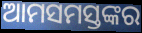
ଆମସମସ୍ତଙ୍କର